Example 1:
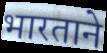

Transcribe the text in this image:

भारताने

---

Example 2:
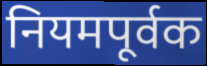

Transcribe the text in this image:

नियमपूर्वक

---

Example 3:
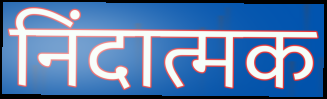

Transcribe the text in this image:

निंदात्मक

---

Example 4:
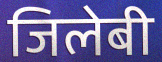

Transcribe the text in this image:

जिलेबी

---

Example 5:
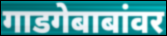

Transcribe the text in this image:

गाडगेबाबांवर